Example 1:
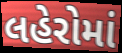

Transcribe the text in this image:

લહેરોમાં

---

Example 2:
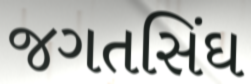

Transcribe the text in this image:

જગતસિંઘ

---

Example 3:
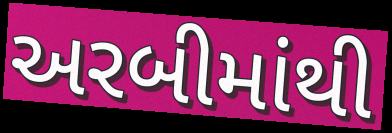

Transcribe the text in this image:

અરબીમાંથી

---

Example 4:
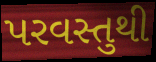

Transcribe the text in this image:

પરવસ્તુથી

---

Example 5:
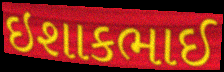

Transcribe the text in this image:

ઇશાકભાઈ